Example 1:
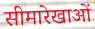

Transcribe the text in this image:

सीमारेखाओं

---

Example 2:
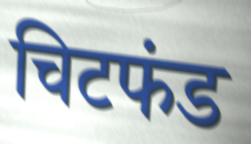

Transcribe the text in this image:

चिटफंड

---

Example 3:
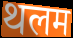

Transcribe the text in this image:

थलम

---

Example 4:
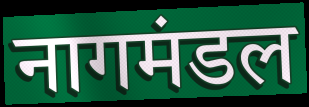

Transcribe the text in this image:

नागमंडल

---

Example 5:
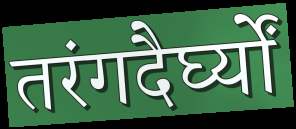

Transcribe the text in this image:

तरंगदैर्घ्यों